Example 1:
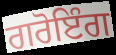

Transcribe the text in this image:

ਗਰੋਇੰਗ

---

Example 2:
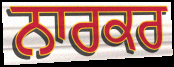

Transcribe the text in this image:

ਨਾਰਕਰ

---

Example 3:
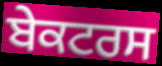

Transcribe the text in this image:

ਬੇਕਟਰਸ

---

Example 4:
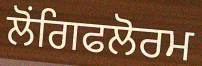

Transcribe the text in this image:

ਲੋਂਗਿਫਲੋਰਮ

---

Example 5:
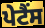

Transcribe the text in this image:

ਪੇਟੈਂਸ